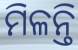
ମିଳନ୍ତି